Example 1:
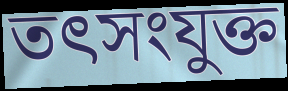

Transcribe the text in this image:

তৎসংযুক্ত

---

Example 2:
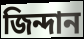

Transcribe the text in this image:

জিন্দান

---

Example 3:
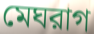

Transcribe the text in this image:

মেঘরাগ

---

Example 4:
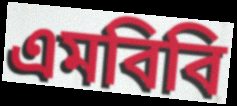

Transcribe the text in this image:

এমবিবি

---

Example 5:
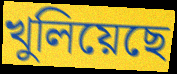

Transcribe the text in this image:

খুলিয়েছে